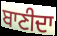
ਬਾਣੀਦਾ